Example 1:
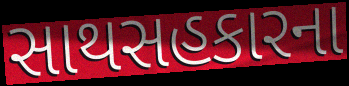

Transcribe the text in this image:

સાથસહકારના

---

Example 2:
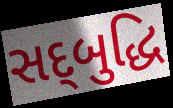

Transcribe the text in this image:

સદ્‌બુદ્ધિ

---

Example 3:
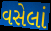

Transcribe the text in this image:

વસેલાં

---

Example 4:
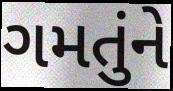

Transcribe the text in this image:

ગમતુંને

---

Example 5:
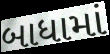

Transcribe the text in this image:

બાધામાં